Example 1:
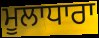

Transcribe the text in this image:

ਮੂਲਾਧਾਰਾ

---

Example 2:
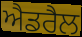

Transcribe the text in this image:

ਐਡਰੈਲ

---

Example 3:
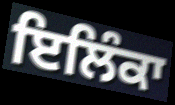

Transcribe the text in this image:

ਇਲਿੰਕਾ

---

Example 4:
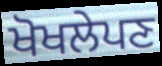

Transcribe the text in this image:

ਖੋਖਲੇਪਣ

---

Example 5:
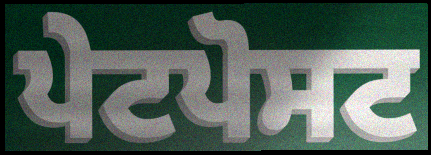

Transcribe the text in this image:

ਪੇਟਪੋਸਟ